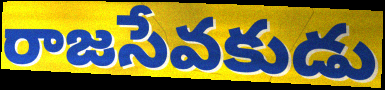
రాజసేవకుడు